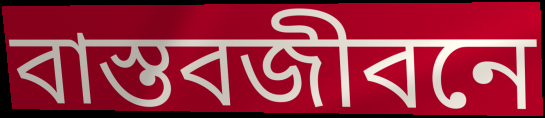
বাস্তবজীবনে